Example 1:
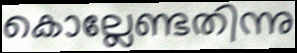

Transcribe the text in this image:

കൊല്ലേണ്ടതിന്നു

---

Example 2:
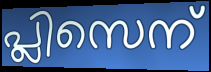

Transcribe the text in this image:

പ്ലിസെന്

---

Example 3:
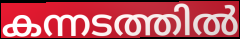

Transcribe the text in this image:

കന്നടത്തിൽ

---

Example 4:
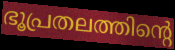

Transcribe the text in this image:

ഭൂപ്രതലത്തിന്റെ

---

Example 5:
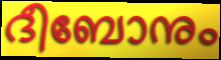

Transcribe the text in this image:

ദീബോനും